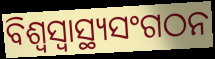
ବିଶ୍ଵସ୍ଵାସ୍ଥ୍ୟସଂଗଠନ